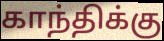
காந்திக்கு